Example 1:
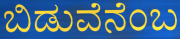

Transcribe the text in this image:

ಬಿಡುವೆನೆಂಬ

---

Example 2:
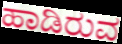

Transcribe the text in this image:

ಹಾಡಿರುವ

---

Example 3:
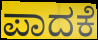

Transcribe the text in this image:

ಪಾದಕೆ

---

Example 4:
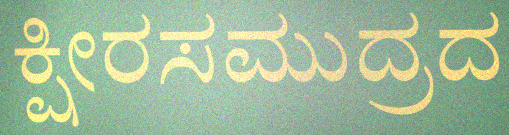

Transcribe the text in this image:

ಕ್ಷೀರಸಮುದ್ರದ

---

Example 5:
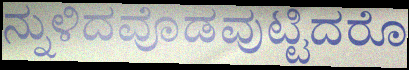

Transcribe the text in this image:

ನ್ನುಳಿದವೊಡವುಟ್ಟಿದರೊ